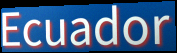
Ecuador